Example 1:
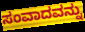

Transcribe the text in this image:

ಸಂವಾದವನ್ನು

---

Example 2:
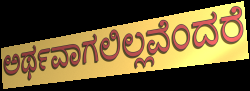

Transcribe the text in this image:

ಅರ್ಥವಾಗಲಿಲ್ಲವೆಂದರೆ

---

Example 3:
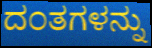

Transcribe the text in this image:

ದಂತಗಳನ್ನು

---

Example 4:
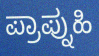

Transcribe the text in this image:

ಪ್ರಾಪ್ನುಹಿ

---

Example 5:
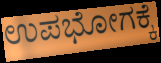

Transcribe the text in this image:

ಉಪಭೋಗಕ್ಕೆ